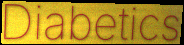
Diabetics